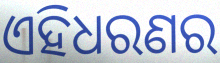
ଏହିଧରଣର